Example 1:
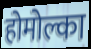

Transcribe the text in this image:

होमोल्का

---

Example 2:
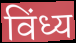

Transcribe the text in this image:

विंध्य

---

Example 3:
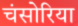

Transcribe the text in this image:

चंसोरिया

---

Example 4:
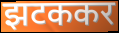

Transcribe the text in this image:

झटककर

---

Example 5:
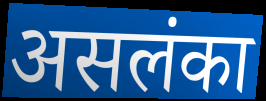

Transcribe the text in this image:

असलंका